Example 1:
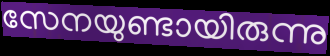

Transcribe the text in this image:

സേനയുണ്ടായിരുന്നു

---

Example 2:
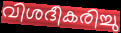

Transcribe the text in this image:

വിശദീകരിച്ചു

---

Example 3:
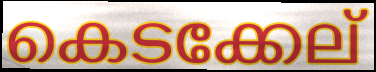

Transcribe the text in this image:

കെടക്കേല്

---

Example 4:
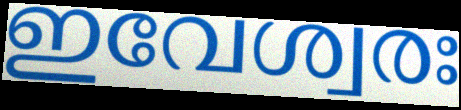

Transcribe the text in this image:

ഇവേശ്വരഃ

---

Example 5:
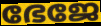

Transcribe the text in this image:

ഭേജേ